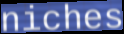
niches